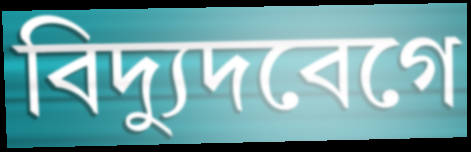
বিদ্যুদবেগে